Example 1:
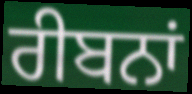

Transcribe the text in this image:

ਰੀਬਨਾਂ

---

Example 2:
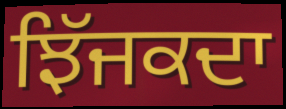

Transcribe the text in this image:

ਝਿੱਜਕਦਾ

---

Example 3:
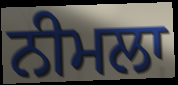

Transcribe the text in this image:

ਨੀਮਲਾ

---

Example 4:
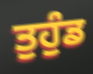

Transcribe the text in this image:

ਤੁਹੁੰਡ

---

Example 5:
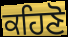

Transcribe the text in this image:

ਕਹਿਣੋ